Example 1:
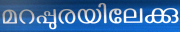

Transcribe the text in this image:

മറപ്പുരയിലേക്കു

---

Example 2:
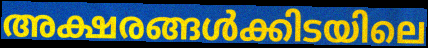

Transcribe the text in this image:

അക്ഷരങ്ങൾക്കിടയിലെ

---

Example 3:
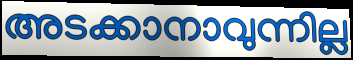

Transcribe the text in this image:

അടക്കാനാവുന്നില്ല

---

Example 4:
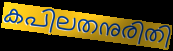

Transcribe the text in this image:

കപിലതനുരിതി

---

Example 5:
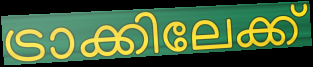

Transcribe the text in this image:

ട്രാക്കിലേക്ക്